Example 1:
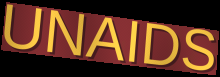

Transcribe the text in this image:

UNAIDS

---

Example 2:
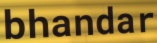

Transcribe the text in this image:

bhandar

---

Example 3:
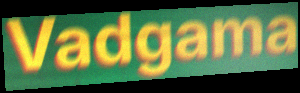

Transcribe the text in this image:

Vadgama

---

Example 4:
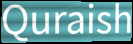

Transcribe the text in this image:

Quraish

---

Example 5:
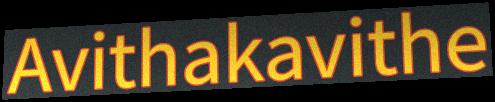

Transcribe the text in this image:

Avithakavithe